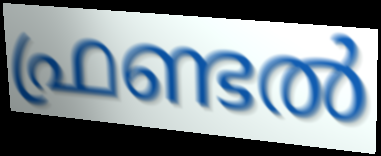
ഫ്രണ്ടൽ